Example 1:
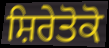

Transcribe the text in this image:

ਸ਼ਿਰੇਤੋਕੋ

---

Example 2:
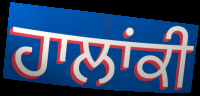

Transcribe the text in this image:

ਹਾਲਾਂਕੀ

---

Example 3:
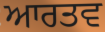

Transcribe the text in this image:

ਆਰਤਵ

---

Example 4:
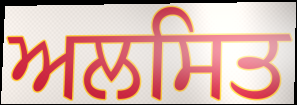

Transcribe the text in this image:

ਅਲਸਿਤ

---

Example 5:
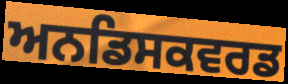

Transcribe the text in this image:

ਅਨਡਿਸਕਵਰਡ